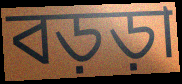
বড়ড়া